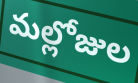
మల్లోజుల